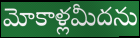
మోకాళ్లమీదను